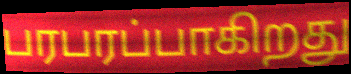
பரபரப்பாகிறது